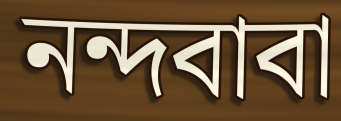
নন্দবাবা